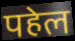
पहेल